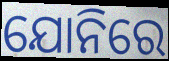
ଯୋନିରେ